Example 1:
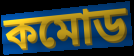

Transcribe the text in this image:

কমোড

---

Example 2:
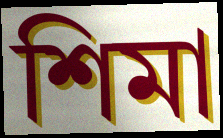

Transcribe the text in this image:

শিমা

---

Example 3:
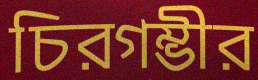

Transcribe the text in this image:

চিরগম্ভীর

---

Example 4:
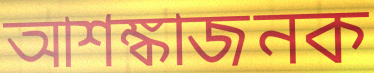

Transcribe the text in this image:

আশঙ্কাজনক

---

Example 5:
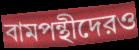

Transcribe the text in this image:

বামপন্থীদেরও